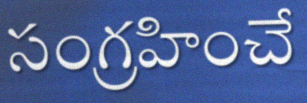
సంగ్రహించే